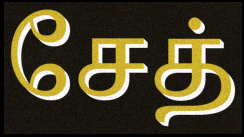
சேத்